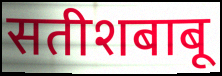
सतीशबाबू